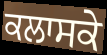
ਕਲਾਸਕੇ